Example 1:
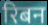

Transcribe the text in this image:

रिबन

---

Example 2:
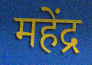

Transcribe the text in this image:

महेंद्र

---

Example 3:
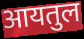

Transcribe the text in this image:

आयतुल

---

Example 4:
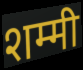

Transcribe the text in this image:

शम्मी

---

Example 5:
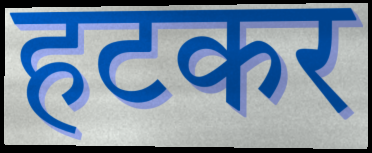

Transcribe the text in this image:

हटकर